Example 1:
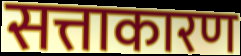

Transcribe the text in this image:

सत्ताकारण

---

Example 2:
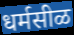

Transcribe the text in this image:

धर्मसीळ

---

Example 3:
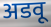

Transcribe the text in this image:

अडवू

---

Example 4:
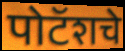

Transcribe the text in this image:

पोटॅशचे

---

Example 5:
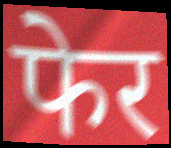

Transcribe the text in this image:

फेर